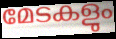
മേടകളും